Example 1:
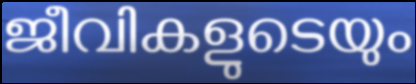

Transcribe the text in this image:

ജീവികളുടെയും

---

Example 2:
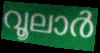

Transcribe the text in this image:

വൂലാർ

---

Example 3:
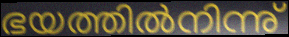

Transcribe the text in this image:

ഭയത്തിൽനിന്നു്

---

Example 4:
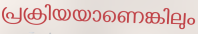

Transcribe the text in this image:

പ്രക്രിയയാണെങ്കിലും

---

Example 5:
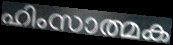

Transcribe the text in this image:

ഹിംസാത്മക